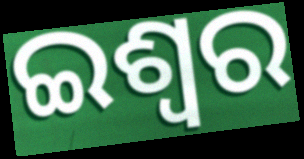
ଇଶ୍ଵର